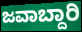
ಜವಾಬ್ದಾರಿ